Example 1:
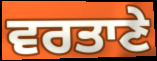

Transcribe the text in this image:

ਵਰਤਾਣੇ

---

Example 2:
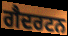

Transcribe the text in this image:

ਗੈਦਰਟਨ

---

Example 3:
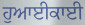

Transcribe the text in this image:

ਹੁਆਈਕਾਈ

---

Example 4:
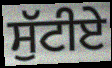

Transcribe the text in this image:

ਸੁੱਟੀਏ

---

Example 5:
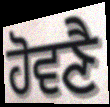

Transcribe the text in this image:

ਹੋਵਣੈ